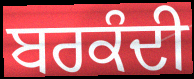
ਬਰਕੰਦੀ